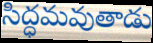
సిద్ధమవుతాడు